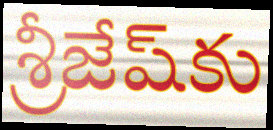
శ్రీజేష్‌కు